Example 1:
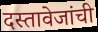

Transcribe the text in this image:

दस्तावेजांची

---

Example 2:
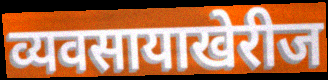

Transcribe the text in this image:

व्यवसायाखेरीज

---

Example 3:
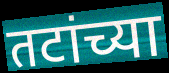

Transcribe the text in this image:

तटांच्या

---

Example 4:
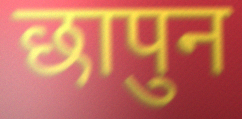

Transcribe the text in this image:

छापुन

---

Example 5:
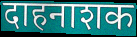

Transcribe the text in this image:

दाहनाशक